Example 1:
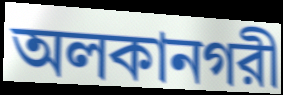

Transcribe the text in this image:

অলকানগরী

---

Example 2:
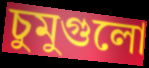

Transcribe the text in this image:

চুমুগুলো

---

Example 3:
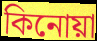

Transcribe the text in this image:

কিনোয়া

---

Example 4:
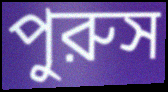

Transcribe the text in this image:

পুরুস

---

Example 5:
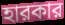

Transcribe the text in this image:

হারকার